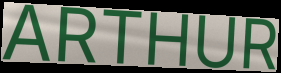
ARTHUR